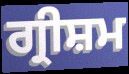
ਗ੍ਰੀਸ਼ਮ